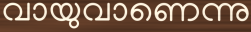
വായുവാണെന്നു